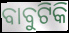
ବାବୁଟିକି